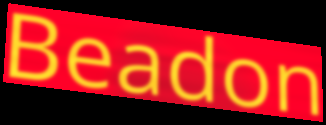
Beadon